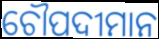
ଚୌପଦୀମାନ